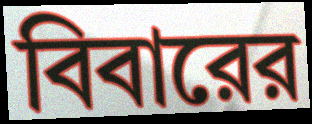
বিবারের